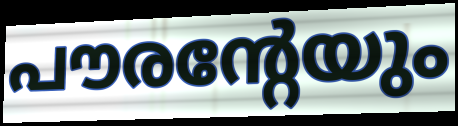
പൗരന്റേയും